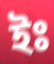
ইঃ